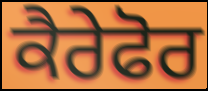
ਕੈਰੇਫੋਰ